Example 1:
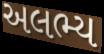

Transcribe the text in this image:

અલભ્ય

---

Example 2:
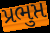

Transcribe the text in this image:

પ્રભુપ્ત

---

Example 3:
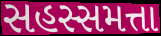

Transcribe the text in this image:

સહસ્સમત્તા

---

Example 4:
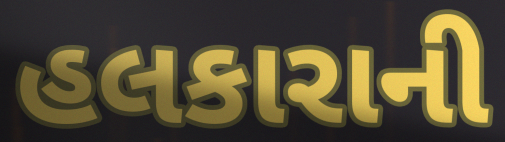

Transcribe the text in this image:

હલકારાની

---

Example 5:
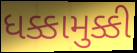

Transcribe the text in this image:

ધક્કામુક્કી